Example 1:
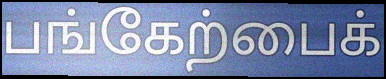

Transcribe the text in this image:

பங்கேற்பைக்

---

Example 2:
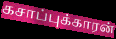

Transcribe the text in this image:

கசாப்புக்காரன்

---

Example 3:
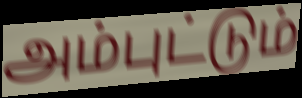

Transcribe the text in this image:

அம்புட்டும்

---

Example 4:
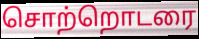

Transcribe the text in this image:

சொற்றொடரை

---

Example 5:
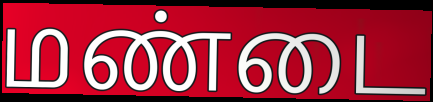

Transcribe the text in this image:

மண்டை